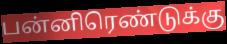
பன்னிரெண்டுக்கு